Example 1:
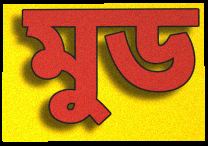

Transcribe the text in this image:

মুড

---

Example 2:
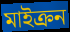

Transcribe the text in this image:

মাইক্রন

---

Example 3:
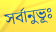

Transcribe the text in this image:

সর্বানুভূঃ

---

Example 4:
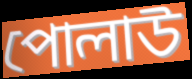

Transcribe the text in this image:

পোলাউ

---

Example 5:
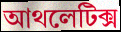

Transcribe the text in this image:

আথলেটিক্স